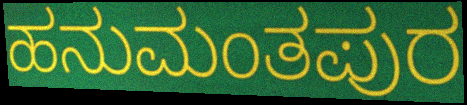
ಹನುಮಂತಪುರ